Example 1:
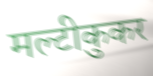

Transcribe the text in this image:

मल्टीकुकर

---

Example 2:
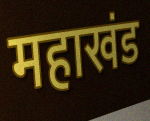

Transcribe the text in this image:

महाखंड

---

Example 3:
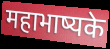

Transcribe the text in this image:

महाभाष्यके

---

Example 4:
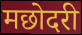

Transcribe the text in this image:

मछोदरी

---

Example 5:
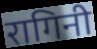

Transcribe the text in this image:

रागिनी